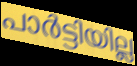
പാർട്ടിയില്ല